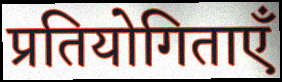
प्रतियोगिताएँ